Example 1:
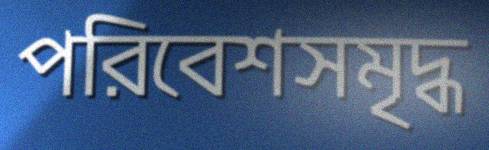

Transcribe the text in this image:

পরিবেশসমৃদ্ধ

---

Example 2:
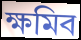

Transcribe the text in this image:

ক্ষমিব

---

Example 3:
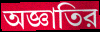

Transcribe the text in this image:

অজ্ঞাতির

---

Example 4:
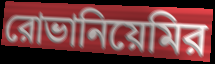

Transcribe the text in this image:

রোভানিয়েমির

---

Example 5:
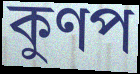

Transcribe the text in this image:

কুণপ